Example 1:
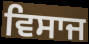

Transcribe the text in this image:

ਵਿਸਾਜ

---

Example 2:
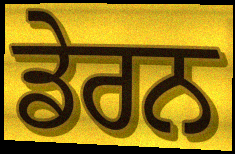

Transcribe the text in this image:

ਡੇਰਨ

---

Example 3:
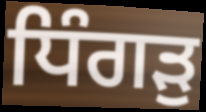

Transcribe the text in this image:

ਧਿੰਗੜੁ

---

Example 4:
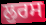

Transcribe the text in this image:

ਲੁਰਸ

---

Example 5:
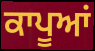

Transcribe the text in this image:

ਕਾਪੂਆਂ